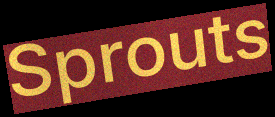
Sprouts